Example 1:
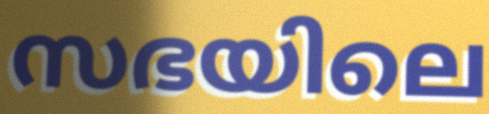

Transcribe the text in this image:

സഭയിലെ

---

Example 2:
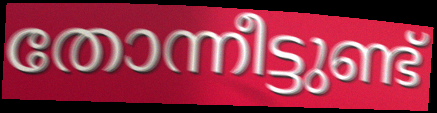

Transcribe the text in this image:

തോന്നീട്ടുണ്ട്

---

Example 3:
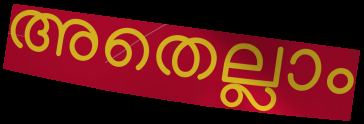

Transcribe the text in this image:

അതെല്ലാം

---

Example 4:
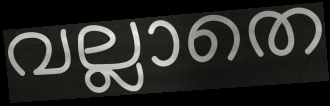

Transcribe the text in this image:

വല്ലാതെ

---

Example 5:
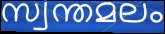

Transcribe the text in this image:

സ്വന്തമലം